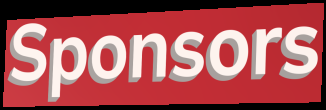
Sponsors